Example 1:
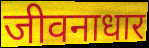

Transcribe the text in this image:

जीवनाधार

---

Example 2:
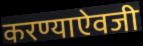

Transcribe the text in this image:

करण्याऐवजी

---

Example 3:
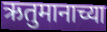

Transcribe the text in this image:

ऋतुमानाच्या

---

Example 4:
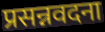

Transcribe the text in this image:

प्रसन्नवदना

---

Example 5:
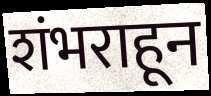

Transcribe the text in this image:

शंभराहून